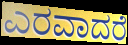
ಎರವಾದರೆ